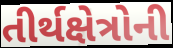
તીર્થક્ષેત્રોની